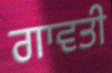
ਗਾਵਤੀ